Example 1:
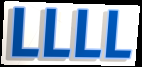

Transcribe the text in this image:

LLLL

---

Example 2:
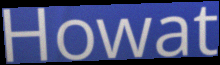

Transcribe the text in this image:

Howat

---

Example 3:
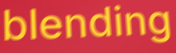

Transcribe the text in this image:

blending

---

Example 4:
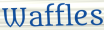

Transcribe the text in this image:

Waffles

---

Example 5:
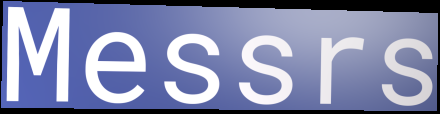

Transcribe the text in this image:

Messrs